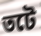
তটে